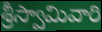
శ్రీస్వామివారి